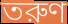
তরুণ